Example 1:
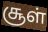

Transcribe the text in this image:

சூள்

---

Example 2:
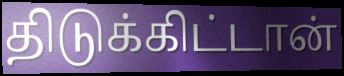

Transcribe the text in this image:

திடுக்கிட்டான்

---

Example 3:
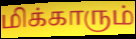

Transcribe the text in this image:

மிக்காரும்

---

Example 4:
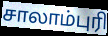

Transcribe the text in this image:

சாலாம்புரி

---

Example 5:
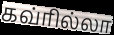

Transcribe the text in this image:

கவ்ரில்லா